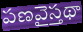
పణవైస్తథా